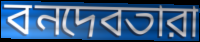
বনদেবতারা